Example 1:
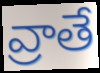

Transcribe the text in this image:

వ్రాతే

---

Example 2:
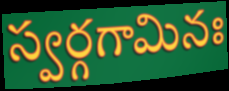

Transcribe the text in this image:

స్వర్గగామినః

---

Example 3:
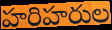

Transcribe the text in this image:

హరిహరుల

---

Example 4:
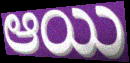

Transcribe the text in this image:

ఆయి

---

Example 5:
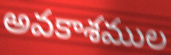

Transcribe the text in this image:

అవకాశముల